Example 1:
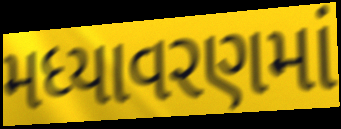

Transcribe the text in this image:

મધ્યાવરણમાં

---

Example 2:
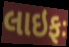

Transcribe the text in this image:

લાઇફઃ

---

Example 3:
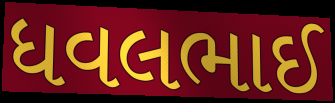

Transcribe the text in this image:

ધવલભાઈ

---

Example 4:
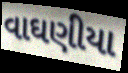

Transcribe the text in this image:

વાઘણીયા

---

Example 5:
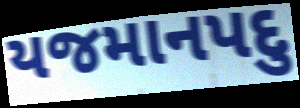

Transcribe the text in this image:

યજમાનપદુ